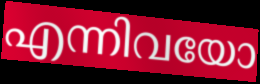
എന്നിവയോ